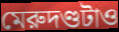
মেরুদণ্ডটাও